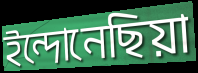
ইন্দোনেছিয়া